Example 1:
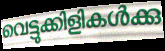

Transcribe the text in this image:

വെട്ടുക്കിളികൾക്കു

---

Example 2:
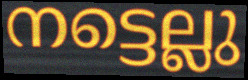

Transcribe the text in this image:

നട്ടെല്ലു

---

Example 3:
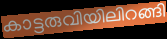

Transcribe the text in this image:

കാട്ടരുവിയിലിറങ്ങി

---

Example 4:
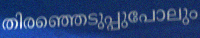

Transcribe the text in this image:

തിരഞ്ഞെടുപ്പുപോലും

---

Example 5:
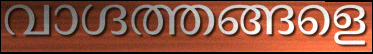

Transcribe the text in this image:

വാഗ്ദത്തങ്ങളെ